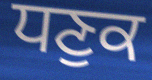
ਧਣੁਕ